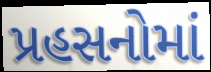
પ્રહસનોમાં